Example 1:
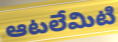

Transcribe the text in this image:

ఆటలేమిటి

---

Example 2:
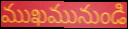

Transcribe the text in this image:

ముఖమునుండి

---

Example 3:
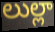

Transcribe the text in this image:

లుల్లా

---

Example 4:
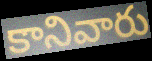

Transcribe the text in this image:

కానివారు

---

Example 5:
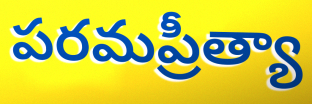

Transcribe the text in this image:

పరమప్రీత్యా